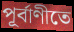
পূর্বাণীতে